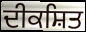
ਦੀਕਸ਼ਿਤ